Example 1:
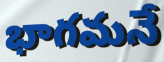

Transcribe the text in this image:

భాగమనే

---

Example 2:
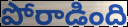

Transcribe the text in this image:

పోరాడింది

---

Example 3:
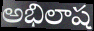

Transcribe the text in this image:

అభిలాష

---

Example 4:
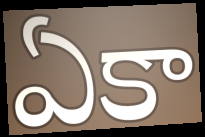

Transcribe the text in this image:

ఏకా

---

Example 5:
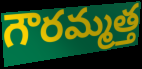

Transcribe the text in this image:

గౌరమ్మత్త